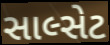
સાલ્સેટ